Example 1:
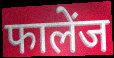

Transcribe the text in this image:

फालेंज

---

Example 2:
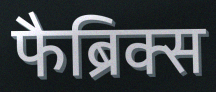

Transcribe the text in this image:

फैब्रिक्स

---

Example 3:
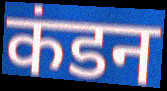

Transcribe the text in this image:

कंडन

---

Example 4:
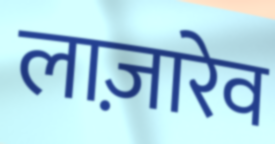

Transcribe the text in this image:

लाज़ारेव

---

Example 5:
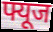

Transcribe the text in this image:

फ्यूज